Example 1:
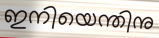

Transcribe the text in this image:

ഇനിയെന്തിനു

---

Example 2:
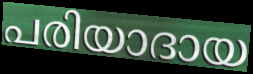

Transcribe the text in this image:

പരിയാദായ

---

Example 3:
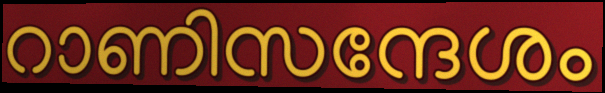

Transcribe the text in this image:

റാണിസന്ദേശം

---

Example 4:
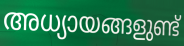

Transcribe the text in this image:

അധ്യായങ്ങളുണ്ട്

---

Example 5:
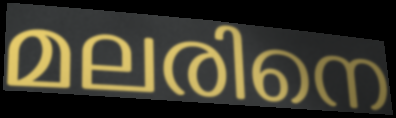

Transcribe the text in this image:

മലരിനെ